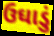
ઉઘાડું